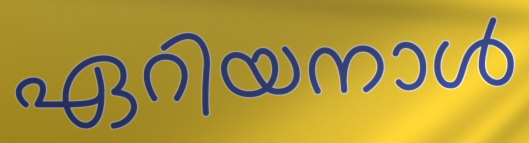
ഏറിയനാൾ